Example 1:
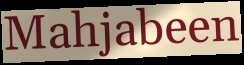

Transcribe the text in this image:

Mahjabeen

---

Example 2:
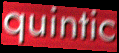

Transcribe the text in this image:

quintic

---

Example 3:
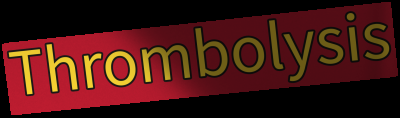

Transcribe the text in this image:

Thrombolysis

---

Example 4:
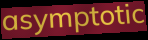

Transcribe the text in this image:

asymptotic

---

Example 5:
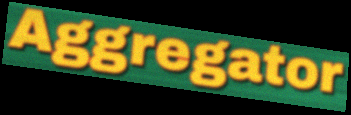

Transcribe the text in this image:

Aggregator